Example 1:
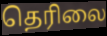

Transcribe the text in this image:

தெரிலை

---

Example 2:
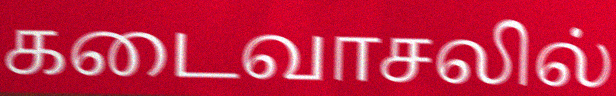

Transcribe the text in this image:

கடைவாசலில்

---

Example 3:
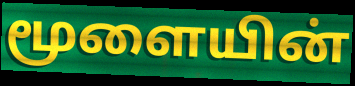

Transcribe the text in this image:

மூளையின்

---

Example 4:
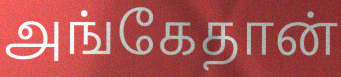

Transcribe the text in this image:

அங்கேதான்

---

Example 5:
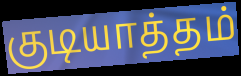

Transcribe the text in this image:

குடியாத்தம்